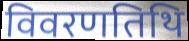
विवरणतिथि